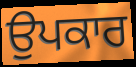
ਉਪਕਾਰ